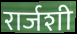
रार्जशी